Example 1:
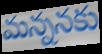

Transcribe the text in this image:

మన్ననకు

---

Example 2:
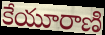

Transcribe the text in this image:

కేయూరాణి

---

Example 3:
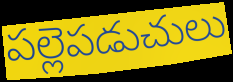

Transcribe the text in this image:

పల్లెపడుచులు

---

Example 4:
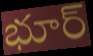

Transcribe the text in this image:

భూర్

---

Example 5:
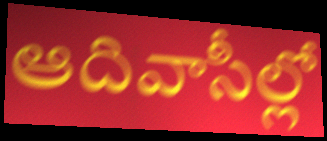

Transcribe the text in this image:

ఆదివాసీల్లో